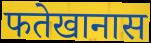
फतेखानास